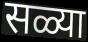
सळ्या